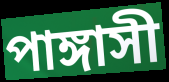
পাঙ্গাসী